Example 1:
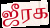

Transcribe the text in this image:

ஜீரக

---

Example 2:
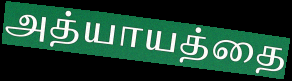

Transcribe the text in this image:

அத்யாயத்தை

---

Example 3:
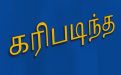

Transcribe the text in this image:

கரிபடிந்த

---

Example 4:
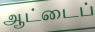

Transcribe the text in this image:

ஆட்டைப்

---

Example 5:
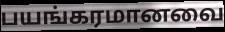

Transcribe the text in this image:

பயங்கரமானவை